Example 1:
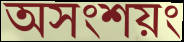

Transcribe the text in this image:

অসংশয়ং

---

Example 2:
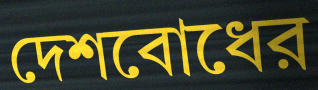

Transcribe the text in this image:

দেশবোধের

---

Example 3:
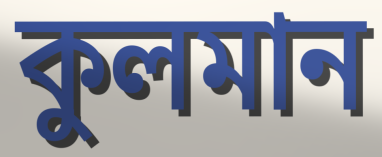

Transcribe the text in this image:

কুলমান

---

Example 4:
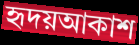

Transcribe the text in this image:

হৃদয়আকাশ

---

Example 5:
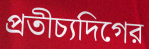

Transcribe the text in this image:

প্রতীচ্যদিগের